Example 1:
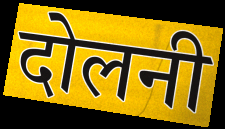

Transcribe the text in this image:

दोलनी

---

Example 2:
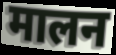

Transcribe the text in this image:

मालन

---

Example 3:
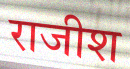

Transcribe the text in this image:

राजीश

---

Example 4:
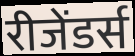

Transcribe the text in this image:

रीजेंडर्स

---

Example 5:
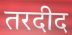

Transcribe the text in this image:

तरदीद